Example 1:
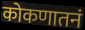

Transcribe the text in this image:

कोकणातनं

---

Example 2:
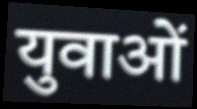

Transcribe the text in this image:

युवाओं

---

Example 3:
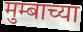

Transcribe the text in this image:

मुम्बाच्या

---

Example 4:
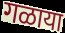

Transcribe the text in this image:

गळाया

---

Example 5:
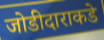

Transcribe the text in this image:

जोडीदाराकडे